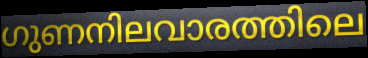
ഗുണനിലവാരത്തിലെ